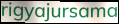
rigyajursama